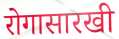
रोगासारखी